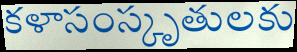
కళాసంస్కృతులకు